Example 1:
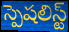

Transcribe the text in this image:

స్పెషలిస్ట్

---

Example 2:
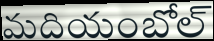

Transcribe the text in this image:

మదియంబోల్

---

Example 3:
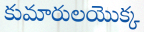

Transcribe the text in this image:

కుమారులయొక్క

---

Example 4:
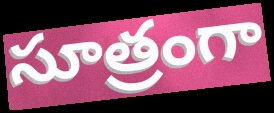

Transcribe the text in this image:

సూత్రంగా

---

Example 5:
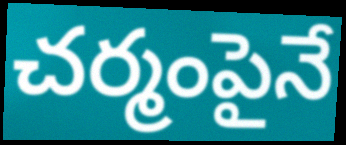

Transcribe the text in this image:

చర్మంపైనే